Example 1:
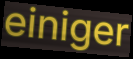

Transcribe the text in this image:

einiger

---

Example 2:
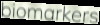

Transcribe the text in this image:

biomarkers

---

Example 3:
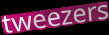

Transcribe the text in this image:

tweezers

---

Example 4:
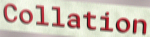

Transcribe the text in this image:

Collation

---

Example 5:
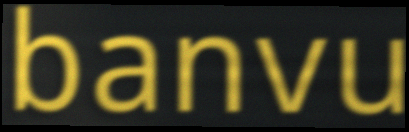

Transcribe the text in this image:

banvu